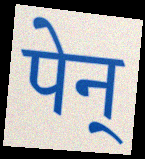
पेन्